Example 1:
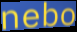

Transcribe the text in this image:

nebo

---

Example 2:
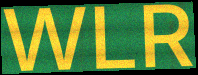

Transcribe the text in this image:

WLR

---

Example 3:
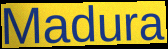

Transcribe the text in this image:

Madura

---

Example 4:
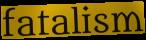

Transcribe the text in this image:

fatalism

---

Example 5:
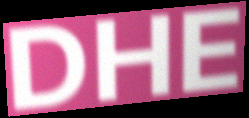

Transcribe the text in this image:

DHE